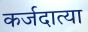
कर्जदात्या